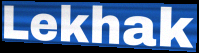
Lekhak